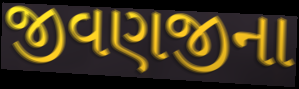
જીવણજીના